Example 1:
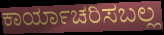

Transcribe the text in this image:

ಕಾರ್ಯಾಚರಿಸಬಲ್ಲ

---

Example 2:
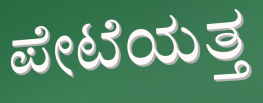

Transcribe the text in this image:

ಪೇಟೆಯತ್ತ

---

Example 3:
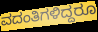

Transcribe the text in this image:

ವದಂತಿಗಳಿದ್ದರೂ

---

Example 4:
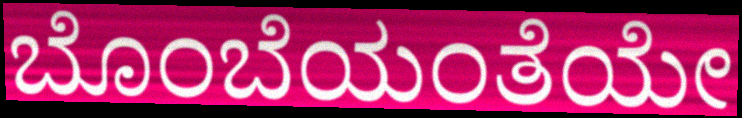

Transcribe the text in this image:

ಬೊಂಬೆಯಂತೆಯೇ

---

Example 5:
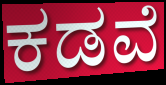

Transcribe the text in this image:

ಕಡವೆ